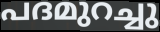
പദമുറച്ചു